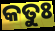
କତୁଃ